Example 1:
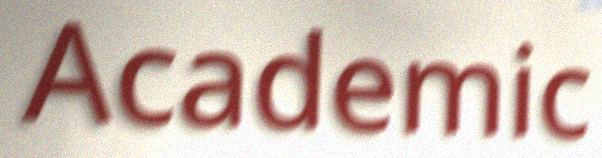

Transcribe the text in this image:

Academic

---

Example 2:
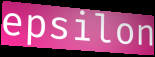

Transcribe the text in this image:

epsilon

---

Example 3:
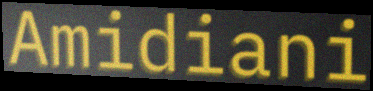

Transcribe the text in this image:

Amidiani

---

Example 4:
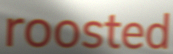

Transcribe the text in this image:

roosted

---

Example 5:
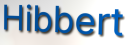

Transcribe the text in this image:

Hibbert